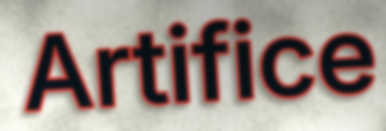
Artifice